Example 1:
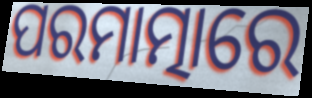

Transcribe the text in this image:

ପରମାତ୍ମାରେ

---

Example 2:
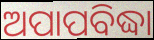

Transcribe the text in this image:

ଅପାପବିଦ୍ଧା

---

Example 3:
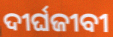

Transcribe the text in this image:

ଦୀର୍ଘଜୀବୀ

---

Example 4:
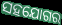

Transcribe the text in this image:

ସହଯୋଗର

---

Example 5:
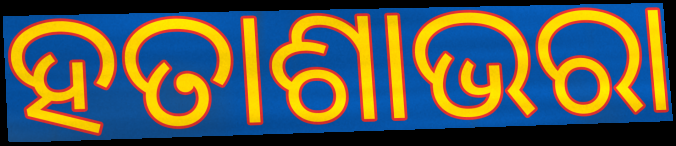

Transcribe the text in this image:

ହତାଶାଭରା